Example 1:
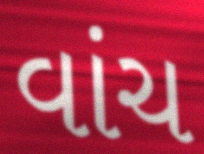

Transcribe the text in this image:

વાંચ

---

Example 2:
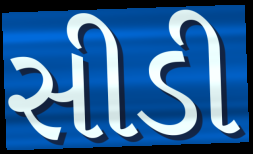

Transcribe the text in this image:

સીડી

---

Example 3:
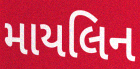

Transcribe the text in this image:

માયલિન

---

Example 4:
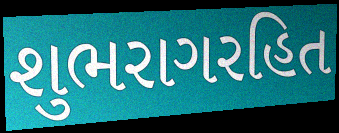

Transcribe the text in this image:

શુભરાગરહિત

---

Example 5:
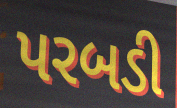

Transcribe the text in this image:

પરબડી